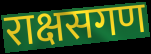
राक्षसगण